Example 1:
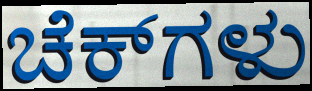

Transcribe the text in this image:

ಚೆಕ್‌ಗಳು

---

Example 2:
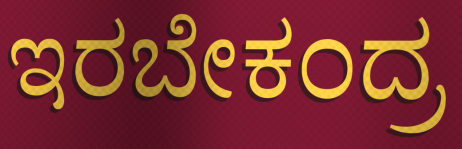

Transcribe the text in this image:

ಇರಬೇಕಂದ್ರ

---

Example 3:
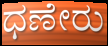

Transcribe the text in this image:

ಧಣೇರು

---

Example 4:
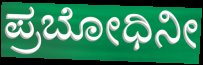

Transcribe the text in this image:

ಪ್ರಬೋಧಿನೀ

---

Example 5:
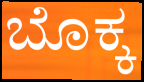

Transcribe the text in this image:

ಬೊಕ್ಕ